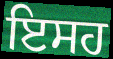
ਇਸਹ